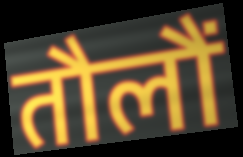
तौलौं